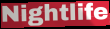
Nightlife